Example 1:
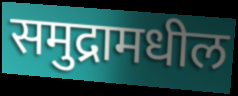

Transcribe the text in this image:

समुद्रामधील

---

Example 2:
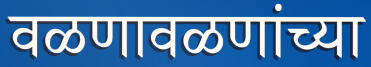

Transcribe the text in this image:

वळणावळणांच्या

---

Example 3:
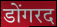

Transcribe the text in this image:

डोंगरद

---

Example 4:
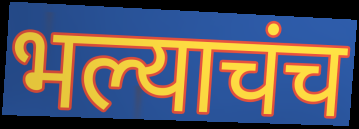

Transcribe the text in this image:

भल्याचंच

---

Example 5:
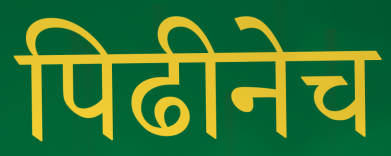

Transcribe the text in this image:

पिढीनेच